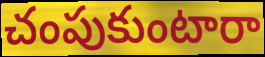
చంపుకుంటారా